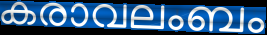
കരാവലംബം